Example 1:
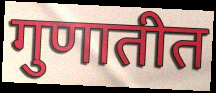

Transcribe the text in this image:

गुणातीत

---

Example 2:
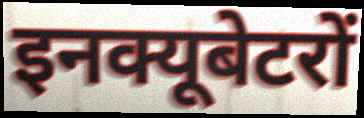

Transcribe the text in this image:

इनक्यूबेटरों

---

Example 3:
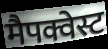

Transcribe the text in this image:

मैपक्वेस्ट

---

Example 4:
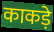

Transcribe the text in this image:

काकड़े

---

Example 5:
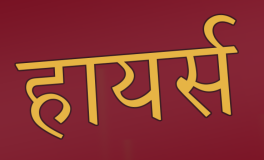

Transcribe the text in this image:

हायर्स